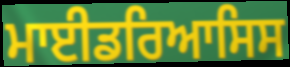
ਮਾਈਡਰਿਆਸਿਸ